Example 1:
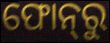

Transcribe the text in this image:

ଫୋନ୍‌ରୁ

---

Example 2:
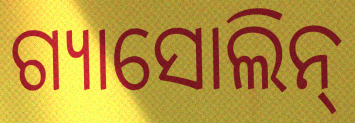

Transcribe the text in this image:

ଗ୍ୟାସୋଲିନ୍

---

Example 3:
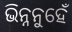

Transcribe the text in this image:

ଭିନ୍ନନୁହେଁ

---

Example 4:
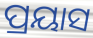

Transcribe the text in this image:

ପ୍ରୟାସ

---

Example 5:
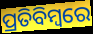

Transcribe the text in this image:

ପ୍ରତିବିମ୍ବରେ